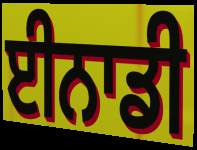
ਈਨਾਡੀ